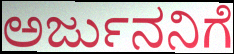
ಅರ್ಜುನನಿಗೆ